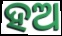
ହଅ